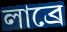
লাব্রে